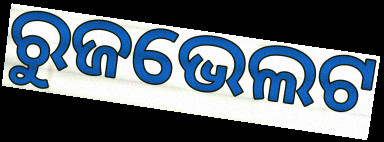
ରୁଜଭେଲଟ